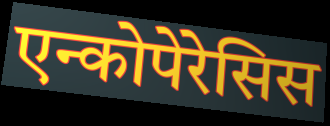
एन्कोपेरेसिस